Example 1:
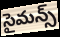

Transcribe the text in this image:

సైమన్స్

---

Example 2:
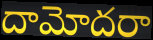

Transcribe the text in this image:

దామోదరా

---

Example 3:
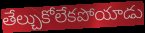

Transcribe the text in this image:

తేల్చుకోలేకపోయాడు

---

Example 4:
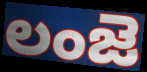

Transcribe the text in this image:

లంజె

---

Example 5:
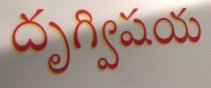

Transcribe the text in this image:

దృగ్విషయ